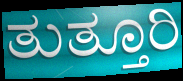
ತುತ್ತೂರಿ